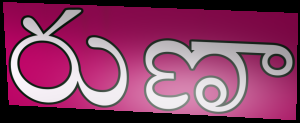
రుణా